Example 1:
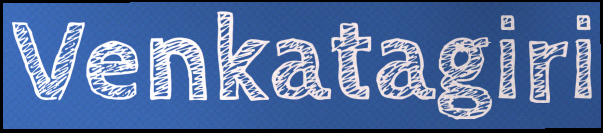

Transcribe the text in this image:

Venkatagiri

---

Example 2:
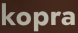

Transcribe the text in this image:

kopra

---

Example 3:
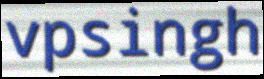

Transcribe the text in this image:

vpsingh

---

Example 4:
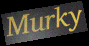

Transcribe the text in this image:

Murky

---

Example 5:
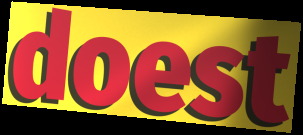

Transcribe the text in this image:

doest